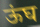
ऊंघ